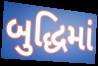
બુદ્ધિમાં